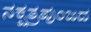
ನಕ್ಷತ್ರಪುಂಜದ